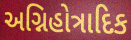
અગ્નિહોત્રાદિક